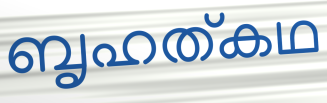
ബൃഹത്കഥ